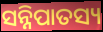
ସନ୍ନିପାତସ୍ୟ